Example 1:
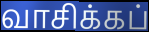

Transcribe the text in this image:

வாசிக்கப்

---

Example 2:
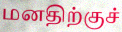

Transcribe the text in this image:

மனதிற்குச்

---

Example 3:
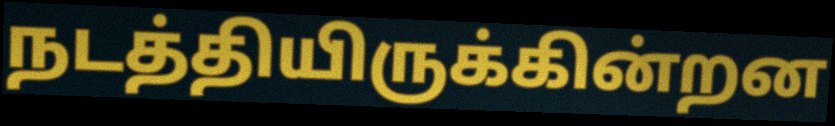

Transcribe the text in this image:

நடத்தியிருக்கின்றன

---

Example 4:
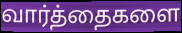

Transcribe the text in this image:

வார்த்தைகளை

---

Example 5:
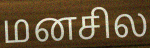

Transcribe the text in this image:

மனசில